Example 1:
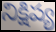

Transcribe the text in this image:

నిక్షిప్య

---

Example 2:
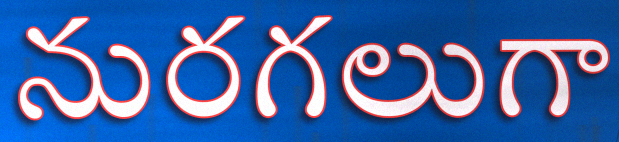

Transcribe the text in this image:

నురగలుగా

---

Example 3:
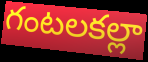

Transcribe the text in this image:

గంటలకల్లా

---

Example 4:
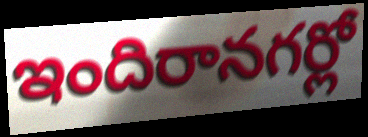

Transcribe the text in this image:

ఇందిరానగర్లో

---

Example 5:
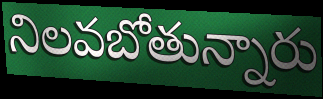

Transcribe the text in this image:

నిలవబోతున్నారు